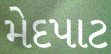
મેદપાટ